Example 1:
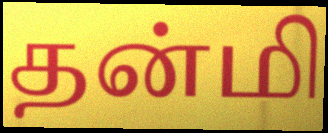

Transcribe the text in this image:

தன்மி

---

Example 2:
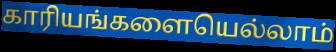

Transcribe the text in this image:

காரியங்களையெல்லாம்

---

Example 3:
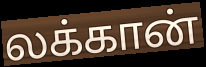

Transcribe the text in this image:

லக்கான்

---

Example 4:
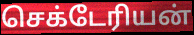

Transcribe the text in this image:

செக்டேரியன்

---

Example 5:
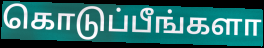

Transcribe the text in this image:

கொடுப்பீங்களா